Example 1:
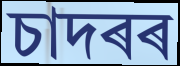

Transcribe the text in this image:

চাদৰৰ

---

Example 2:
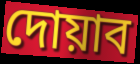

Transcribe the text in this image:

দোয়াব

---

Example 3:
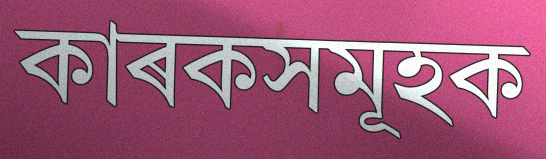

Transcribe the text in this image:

কাৰকসমূহক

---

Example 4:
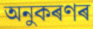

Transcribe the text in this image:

অনুকৰণৰ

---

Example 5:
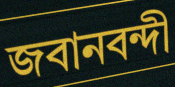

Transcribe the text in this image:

জবানবন্দী